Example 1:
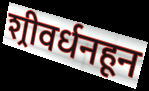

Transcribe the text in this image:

श्रीवर्धनहून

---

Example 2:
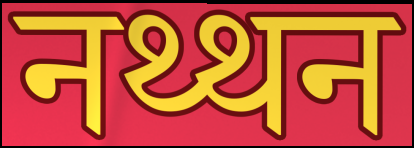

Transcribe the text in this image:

नथ्थन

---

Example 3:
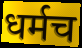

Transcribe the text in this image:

धर्मच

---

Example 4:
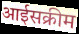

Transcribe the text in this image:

आईसक्रीम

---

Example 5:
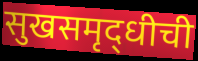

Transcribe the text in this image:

सुखसमृद्धीची